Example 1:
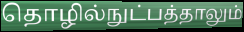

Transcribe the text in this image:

தொழில்நுட்பத்தாலும்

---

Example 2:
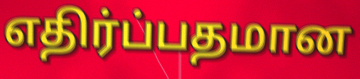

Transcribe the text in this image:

எதிர்ப்பதமான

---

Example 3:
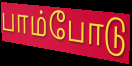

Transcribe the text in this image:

பாம்போடு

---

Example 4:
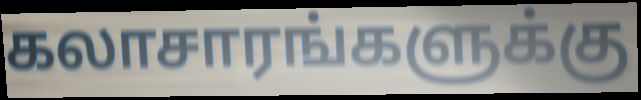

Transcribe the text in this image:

கலாசாரங்களுக்கு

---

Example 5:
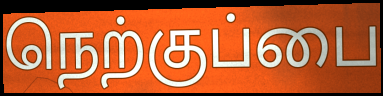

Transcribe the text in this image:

நெற்குப்பை